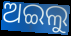
ଅଇଲୁ